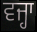
ਵਜ੍ਹਾ